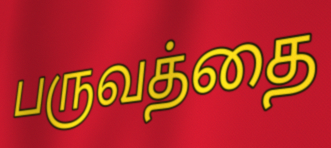
பருவத்தை